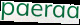
paeraa